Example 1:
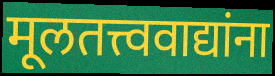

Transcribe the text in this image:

मूलतत्त्ववाद्यांना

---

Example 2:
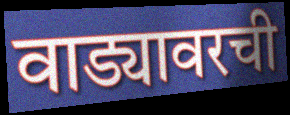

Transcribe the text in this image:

वाड्यावरची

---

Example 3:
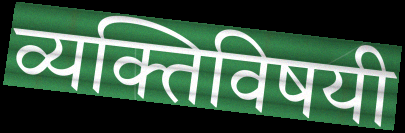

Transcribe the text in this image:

व्यक्तिविषयी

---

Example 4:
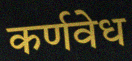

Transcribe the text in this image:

कर्णवेध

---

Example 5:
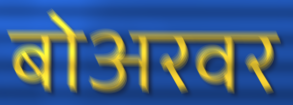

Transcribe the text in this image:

बोअरवर